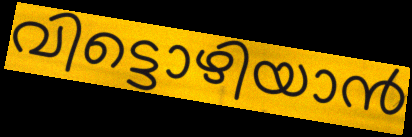
വിട്ടൊഴിയാൻ